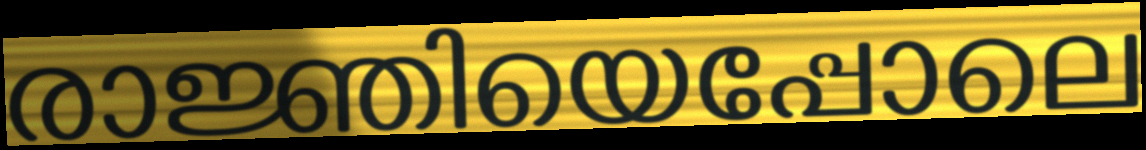
രാജ്ഞിയെപ്പോലെ